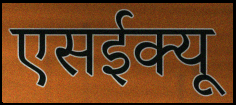
एसईक्यू